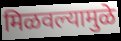
मिळवल्यामुळे